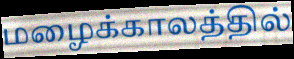
மழைக்காலத்தில்